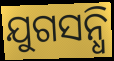
ଯୁଗସନ୍ଧି